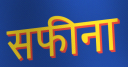
सफीना